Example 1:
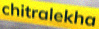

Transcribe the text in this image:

chitralekha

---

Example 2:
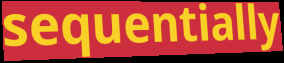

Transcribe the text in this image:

sequentially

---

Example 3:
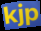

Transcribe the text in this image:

kjp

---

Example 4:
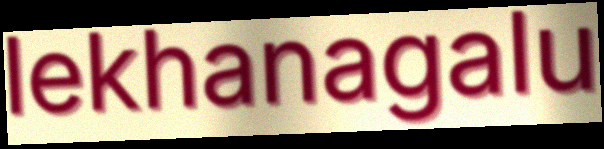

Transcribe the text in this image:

lekhanagalu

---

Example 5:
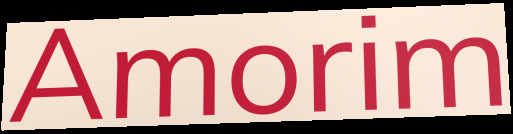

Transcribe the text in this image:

Amorim